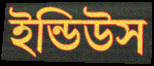
ইন্ডিউস